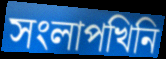
সংলাপখিনি